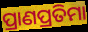
ପ୍ରାଣପ୍ରତିମା